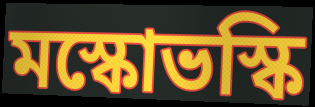
মস্কোভস্কি